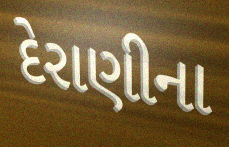
દેરાણીના